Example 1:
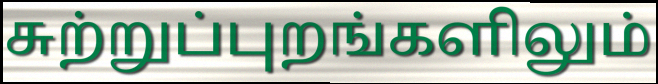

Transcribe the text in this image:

சுற்றுப்புறங்களிலும்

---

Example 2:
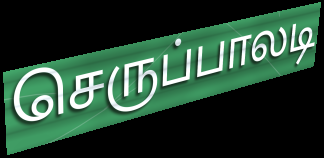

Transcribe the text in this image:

செருப்பாலடி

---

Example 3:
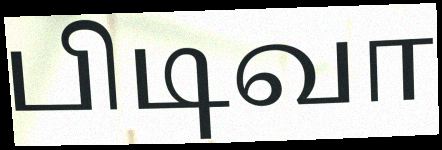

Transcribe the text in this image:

பிடிவா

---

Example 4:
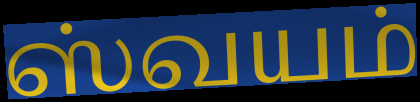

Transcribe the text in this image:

ஸ்வயம்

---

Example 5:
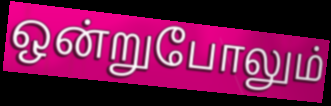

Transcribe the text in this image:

ஒன்றுபோலும்